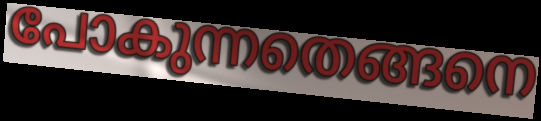
പോകുന്നതെങ്ങനെ